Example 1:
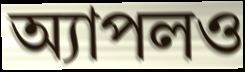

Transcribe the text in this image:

অ্যাপলও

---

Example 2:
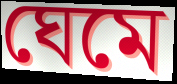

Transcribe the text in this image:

ঘেমে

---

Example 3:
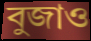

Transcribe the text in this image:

বুজাও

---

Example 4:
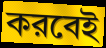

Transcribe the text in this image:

করবেই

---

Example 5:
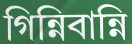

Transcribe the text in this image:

গিন্নিবান্নি